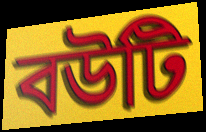
বউটি